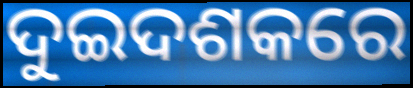
ଦୁଇଦଶକରେ